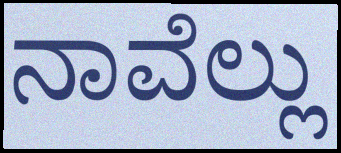
ನಾವೆಲ್ಲು